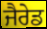
ਜੈਰੇਡ